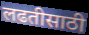
लढतीसाठी